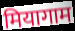
मियागाम